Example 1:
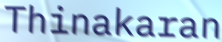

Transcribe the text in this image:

Thinakaran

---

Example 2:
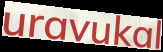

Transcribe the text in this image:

uravukal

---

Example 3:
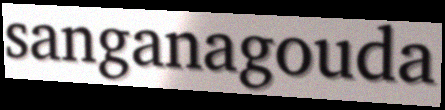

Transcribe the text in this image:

sanganagouda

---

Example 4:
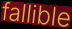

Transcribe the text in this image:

fallible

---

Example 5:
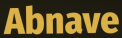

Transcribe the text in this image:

Abnave